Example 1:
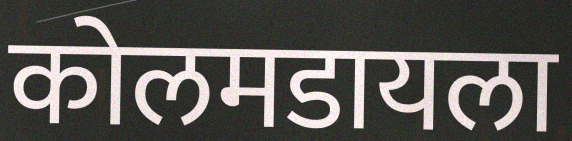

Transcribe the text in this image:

कोलमडायला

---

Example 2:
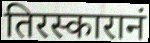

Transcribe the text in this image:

तिरस्कारानं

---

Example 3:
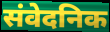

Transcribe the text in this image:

संवेदनिक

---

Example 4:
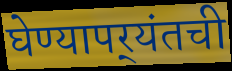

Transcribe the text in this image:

घेण्यापर्यंतची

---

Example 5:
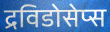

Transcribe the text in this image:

द्रविडोसेप्स